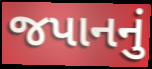
જપાનનું